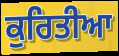
ਕੁਰਿਤੀਆ